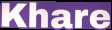
Khare